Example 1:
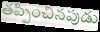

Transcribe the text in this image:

తప్పించినపుడు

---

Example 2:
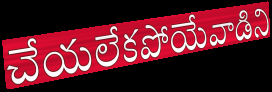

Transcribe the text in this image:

చేయలేకపోయేవాడిని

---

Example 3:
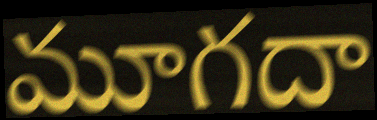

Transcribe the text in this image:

మూగదా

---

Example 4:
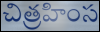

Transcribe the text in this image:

చిత్రహింస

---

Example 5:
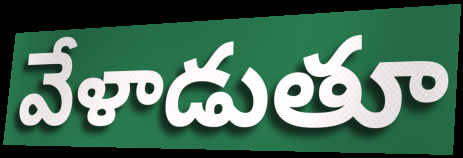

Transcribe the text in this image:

వేళాడుతూ